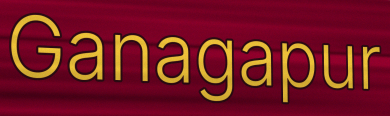
Ganagapur